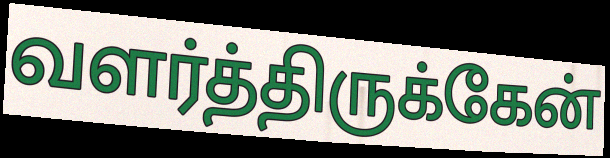
வளர்த்திருக்கேன்